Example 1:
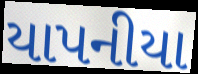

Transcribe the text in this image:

યાપનીયા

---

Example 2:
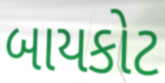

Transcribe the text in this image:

બાયકોટ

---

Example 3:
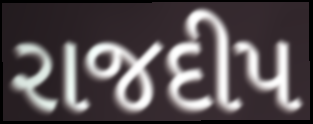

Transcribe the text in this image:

રાજદીપ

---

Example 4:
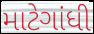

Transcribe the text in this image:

માટેગાંધી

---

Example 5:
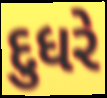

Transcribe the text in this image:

દુધરે